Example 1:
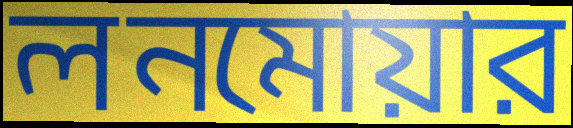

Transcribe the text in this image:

লনমোয়ার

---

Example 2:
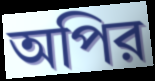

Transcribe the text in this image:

অপির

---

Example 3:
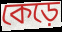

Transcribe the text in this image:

কেড়ে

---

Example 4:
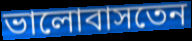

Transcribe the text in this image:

ভালোবাসতেন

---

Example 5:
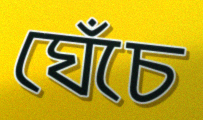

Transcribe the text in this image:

ঘেঁচে